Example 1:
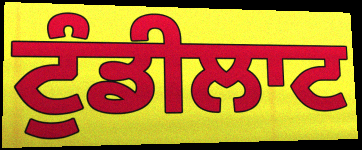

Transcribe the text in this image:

ਟੁੰਡੀਲਾਟ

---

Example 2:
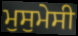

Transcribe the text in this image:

ਮੁਸੁਮੇਸੀ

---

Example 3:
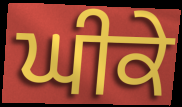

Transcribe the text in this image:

ਘੀਕੇ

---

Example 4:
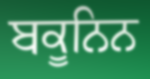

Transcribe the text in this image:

ਬਕੂਨਿਨ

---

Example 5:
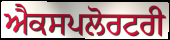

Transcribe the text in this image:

ਐਕਸਪਲੋਰਟਰੀ